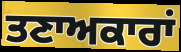
ਤਣਾਅਕਾਰਾਂ